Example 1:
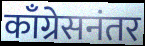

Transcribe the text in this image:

काँग्रेसनंतर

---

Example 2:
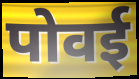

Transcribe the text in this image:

पोवई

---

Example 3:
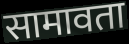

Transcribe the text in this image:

सामावता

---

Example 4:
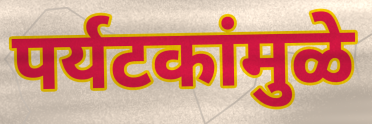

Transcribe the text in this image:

पर्यटकांमुळे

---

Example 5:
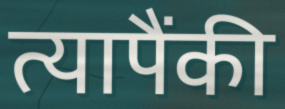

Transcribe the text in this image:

त्यापैंकी